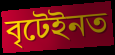
বৃটেইনত